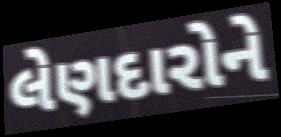
લેણદારોને